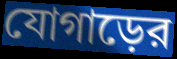
যোগাড়ের